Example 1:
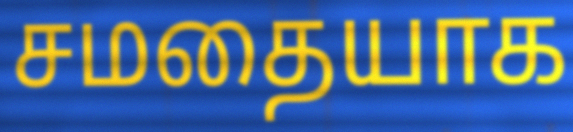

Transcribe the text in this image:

சமதையாக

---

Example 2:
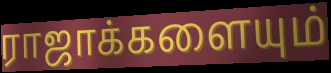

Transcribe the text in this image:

ராஜாக்களையும்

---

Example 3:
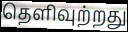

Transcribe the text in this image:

தெளிவுற்றது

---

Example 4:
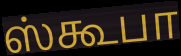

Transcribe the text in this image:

ஸ்கூபா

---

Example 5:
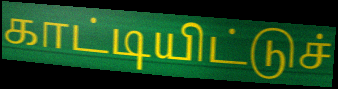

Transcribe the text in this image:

காட்டியிட்டுச்